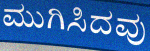
ಮುಗಿಸಿದವು